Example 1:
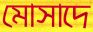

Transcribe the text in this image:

মোসাদে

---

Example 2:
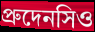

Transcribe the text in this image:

প্রুদেনসিও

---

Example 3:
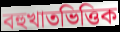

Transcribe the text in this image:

বহুখাতভিত্তিক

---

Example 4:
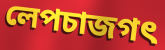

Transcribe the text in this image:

লেপচাজগৎ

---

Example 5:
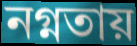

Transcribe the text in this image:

নগ্নতায়